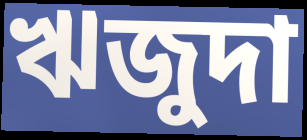
ঋজুদা